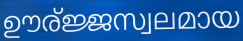
ഊര്ജ്ജസ്വലമായ